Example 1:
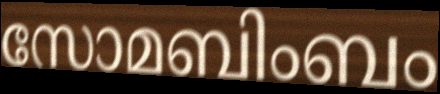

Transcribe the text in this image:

സോമബിംബം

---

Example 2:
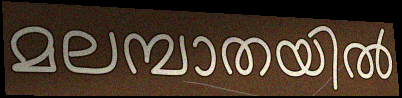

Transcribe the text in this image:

മലമ്പാതയിൽ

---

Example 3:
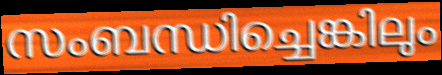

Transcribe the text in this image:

സംബന്ധിച്ചെങ്കിലും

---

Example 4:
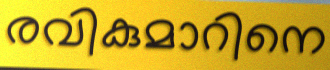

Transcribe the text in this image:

രവികുമാറിനെ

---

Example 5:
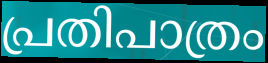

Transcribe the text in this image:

പ്രതിപാത്രം